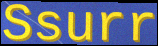
Ssurr